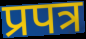
प्रपत्र